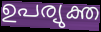
ഉപര്യുക്ത